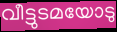
വീട്ടുടമയോടു